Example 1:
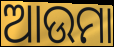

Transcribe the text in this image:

ଆଉମା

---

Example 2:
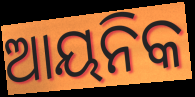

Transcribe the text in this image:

ଆୟନିକ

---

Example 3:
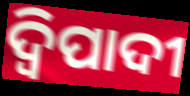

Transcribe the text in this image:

ଦ୍ୱିପାଦୀ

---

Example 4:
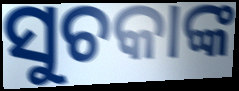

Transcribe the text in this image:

ସୁଚକାଙ୍କ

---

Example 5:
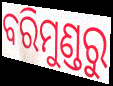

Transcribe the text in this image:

ବରିମୁଣ୍ଡରୁ